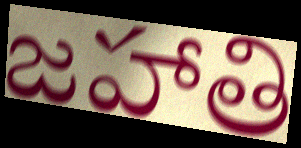
జహాతి